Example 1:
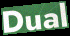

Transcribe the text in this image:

Dual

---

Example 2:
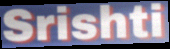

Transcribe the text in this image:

Srishti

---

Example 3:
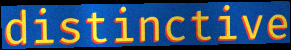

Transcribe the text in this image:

distinctive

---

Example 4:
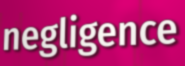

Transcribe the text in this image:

negligence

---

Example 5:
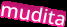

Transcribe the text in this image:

mudita